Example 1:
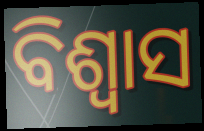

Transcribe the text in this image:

ବିଶ୍ଵାସ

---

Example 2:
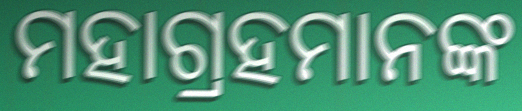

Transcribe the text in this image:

ମହାଗ୍ରହମାନଙ୍କ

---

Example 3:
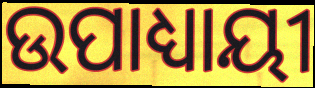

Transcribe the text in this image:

ଉପାଧ୍ୟାୟୀ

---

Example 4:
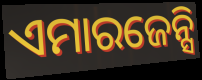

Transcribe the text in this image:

ଏମାରଜେନ୍ସି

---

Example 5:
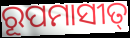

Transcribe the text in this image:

ରୂପମାସୀତ୍